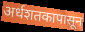
अर्धशतकापासून